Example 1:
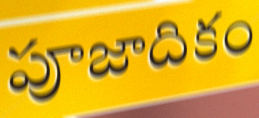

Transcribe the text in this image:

పూజాదికం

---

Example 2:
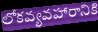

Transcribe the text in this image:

లోకవ్యవహారానికి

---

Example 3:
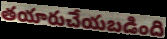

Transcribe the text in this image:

తయారుచేయబడింది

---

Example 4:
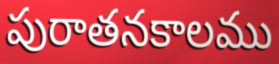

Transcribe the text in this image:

పురాతనకాలము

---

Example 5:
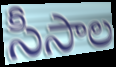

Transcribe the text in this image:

సీసాల